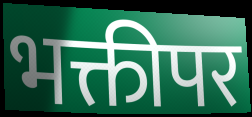
भक्तीपर